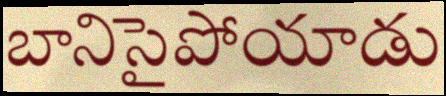
బానిసైపోయాడు